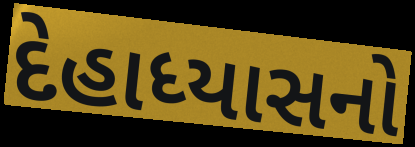
દેહાધ્યાસનો